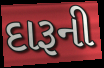
દારૂની